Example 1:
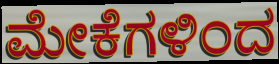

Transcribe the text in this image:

ಮೇಕೆಗಳಿಂದ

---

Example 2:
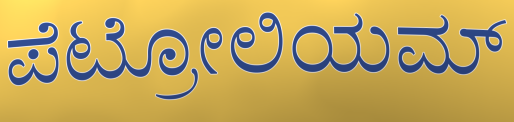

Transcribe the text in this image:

ಪೆಟ್ರೋಲಿಯಮ್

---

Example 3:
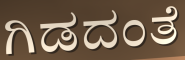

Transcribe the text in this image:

ಗಿಡದಂತೆ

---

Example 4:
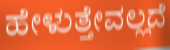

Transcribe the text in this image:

ಹೇಳುತ್ತೇವಲ್ಲದೆ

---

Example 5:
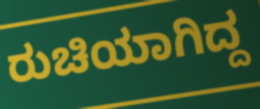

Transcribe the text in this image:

ರುಚಿಯಾಗಿದ್ದ